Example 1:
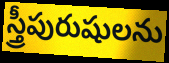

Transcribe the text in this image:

స్త్రీపురుషులను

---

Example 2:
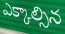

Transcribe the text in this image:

ఎక్కాల్సిన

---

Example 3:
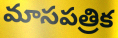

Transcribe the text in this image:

మాసపత్రిక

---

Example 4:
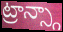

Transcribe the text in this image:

ట్రాన్స్గా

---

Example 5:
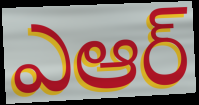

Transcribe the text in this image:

ఎఆర్